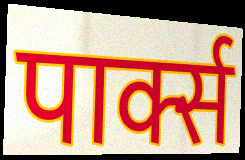
पार्क्स